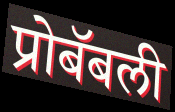
प्रोबॅबली